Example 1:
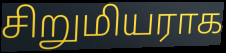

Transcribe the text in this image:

சிறுமியராக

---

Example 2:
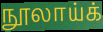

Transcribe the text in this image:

நூலாய்க்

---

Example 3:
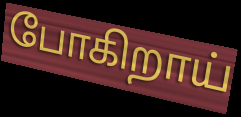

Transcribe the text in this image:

போகிறாய்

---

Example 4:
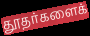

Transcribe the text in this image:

தூதர்களைக்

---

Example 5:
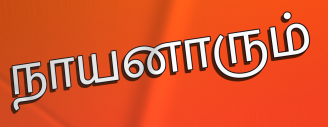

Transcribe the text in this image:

நாயனாரும்